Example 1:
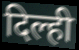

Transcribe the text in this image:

दिल्ही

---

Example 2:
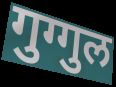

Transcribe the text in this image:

गुग्गुल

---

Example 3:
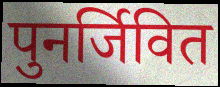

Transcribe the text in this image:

पुनर्जिवित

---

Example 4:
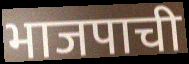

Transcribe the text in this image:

भाजपाची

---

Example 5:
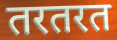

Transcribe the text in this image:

तरतरत